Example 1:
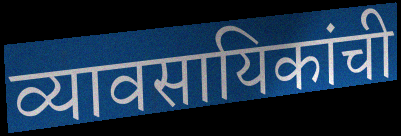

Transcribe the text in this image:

व्यावसायिकांची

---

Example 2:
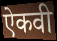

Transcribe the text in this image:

ऐकवी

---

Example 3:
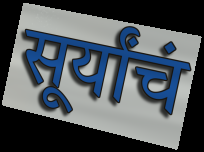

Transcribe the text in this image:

सूर्यांचं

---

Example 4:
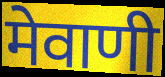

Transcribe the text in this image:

मेवाणी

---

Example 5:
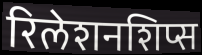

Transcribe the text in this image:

रिलेशनशिप्स